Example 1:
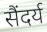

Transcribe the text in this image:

सैंदर्य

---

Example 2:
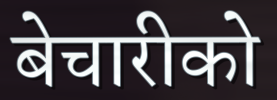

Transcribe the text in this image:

बेचारीको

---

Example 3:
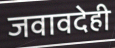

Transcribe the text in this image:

जवावदेही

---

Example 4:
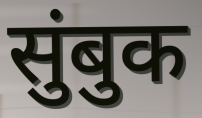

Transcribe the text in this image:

सुंबुक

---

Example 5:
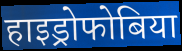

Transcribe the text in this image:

हाइड्रोफोबिया